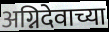
अग्निदेवाच्या